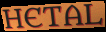
HETAL